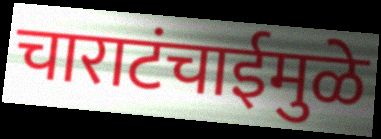
चाराटंचाईमुळे